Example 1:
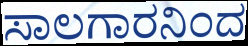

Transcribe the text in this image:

ಸಾಲಗಾರನಿಂದ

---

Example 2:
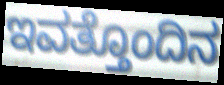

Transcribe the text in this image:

ಇವತ್ತೊಂದಿನ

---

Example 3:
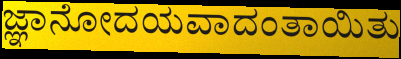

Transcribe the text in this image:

ಜ್ಞಾನೋದಯವಾದಂತಾಯಿತು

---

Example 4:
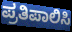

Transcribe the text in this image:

ಪ್ರತಿಪಾಲಿಸಿ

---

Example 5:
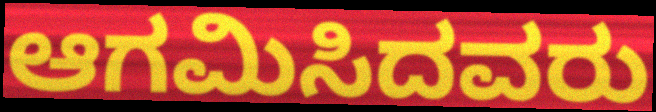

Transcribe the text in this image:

ಆಗಮಿಸಿದವರು